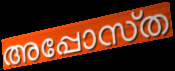
അപ്പോസ്‌ത